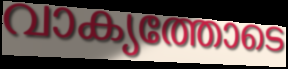
വാക്യത്തോടെ